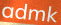
admk